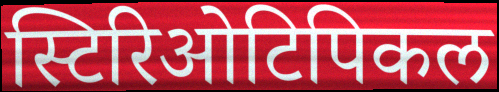
स्टिरिओटिपिकल